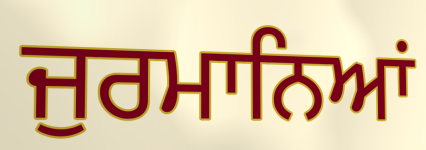
ਜੁਰਮਾਨਿਆਂ